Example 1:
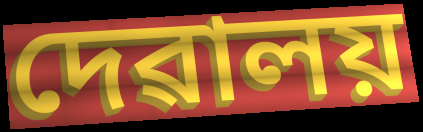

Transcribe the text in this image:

দেৱালয়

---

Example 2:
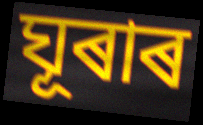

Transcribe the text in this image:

ঘূৰাৰ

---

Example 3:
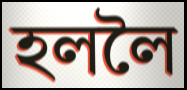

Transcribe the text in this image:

হললৈ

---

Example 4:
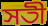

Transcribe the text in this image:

সতী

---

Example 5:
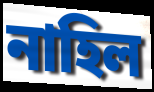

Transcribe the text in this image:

নাহিল